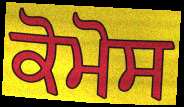
ਕੋਮੋਸ